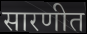
सारणीत